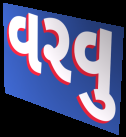
વરવુ